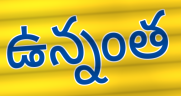
ఉన్నంత